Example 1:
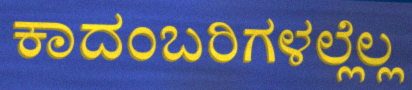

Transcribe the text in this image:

ಕಾದಂಬರಿಗಳಲ್ಲೆಲ್ಲ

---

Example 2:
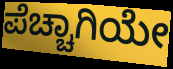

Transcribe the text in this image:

ಪೆಚ್ಚಾಗಿಯೇ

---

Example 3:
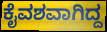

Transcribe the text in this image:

ಕೈವಶವಾಗಿದ್ದ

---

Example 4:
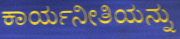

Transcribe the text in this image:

ಕಾರ್ಯನೀತಿಯನ್ನು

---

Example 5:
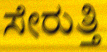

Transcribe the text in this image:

ಸೇರುತ್ತಿ